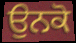
ਉਨਕੋ